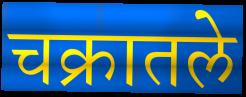
चक्रातले